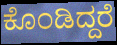
ಕೊಂಡಿದ್ದರೆ